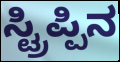
ಸ್ಟ್ರಿಪ್ಪಿನ